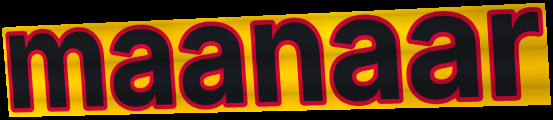
maanaar